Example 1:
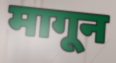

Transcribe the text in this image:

मागून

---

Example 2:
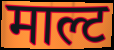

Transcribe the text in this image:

माल्ट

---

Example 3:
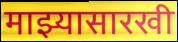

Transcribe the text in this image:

माझ्यासारखी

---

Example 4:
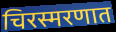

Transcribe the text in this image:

चिरस्मरणात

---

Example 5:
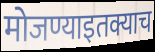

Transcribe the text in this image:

मोजण्याइतक्याच